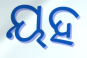
ୟହ